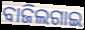
ବାଜିଲଗାଇ